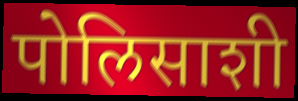
पोलिसाशी